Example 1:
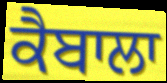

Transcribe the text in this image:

ਕੈਬਾਲਾ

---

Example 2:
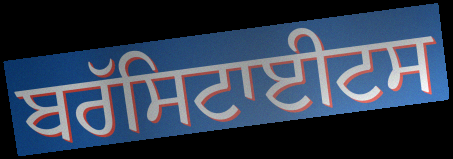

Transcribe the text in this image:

ਬਰੱਸਿਟਾਈਟਸ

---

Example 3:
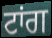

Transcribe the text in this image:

ਟਾਂਗ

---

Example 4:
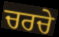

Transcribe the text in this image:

ਚਰਚੇ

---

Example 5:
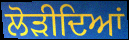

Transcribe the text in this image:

ਲੋੜੀਦਿਆਂ